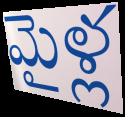
మైళ్ల